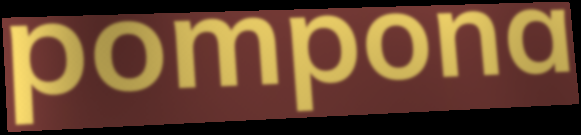
pompona